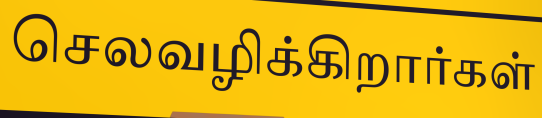
செலவழிக்கிறார்கள்